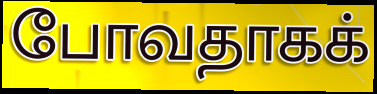
போவதாகக்